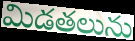
మిడతలును